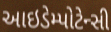
આઇડેમ્પોટેન્સી